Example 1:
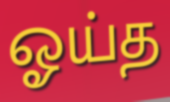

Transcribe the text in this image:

ஓய்த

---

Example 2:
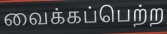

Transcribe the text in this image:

வைக்கப்பெற்ற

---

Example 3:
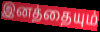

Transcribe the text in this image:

இனத்தையும்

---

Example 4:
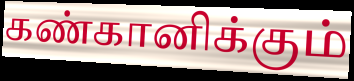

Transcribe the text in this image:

கண்கானிக்கும்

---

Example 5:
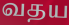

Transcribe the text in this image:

வதய